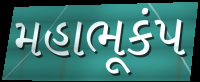
મહાભૂકંપ